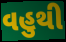
વહુથી